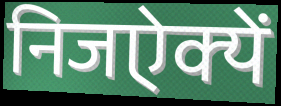
निजऐक्यें